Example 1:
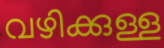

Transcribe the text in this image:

വഴിക്കുള്ള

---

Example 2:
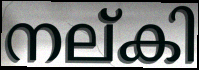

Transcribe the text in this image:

നല്കി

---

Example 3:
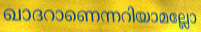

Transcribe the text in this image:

ഖാദറാണെന്നറിയാമല്ലോ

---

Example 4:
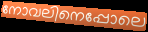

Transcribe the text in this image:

നോവലിനെപ്പോലെ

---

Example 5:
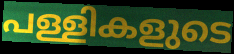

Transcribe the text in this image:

പള്ളികളുടെ